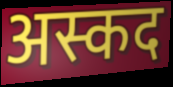
अस्कद